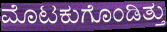
ಮೊಟಕುಗೊಂಡಿತ್ತು